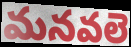
మనవలె